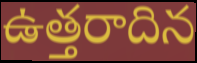
ఉత్తరాదిన